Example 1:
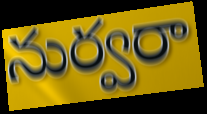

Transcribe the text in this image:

నుర్వరా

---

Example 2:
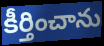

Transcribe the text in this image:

కీర్తించాను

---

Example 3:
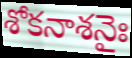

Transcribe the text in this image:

శోకనాశనైః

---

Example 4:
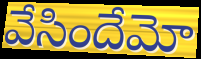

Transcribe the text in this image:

వేసిందేమో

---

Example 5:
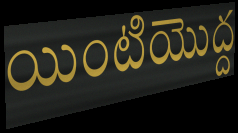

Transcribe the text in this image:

యింటియొద్ద